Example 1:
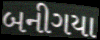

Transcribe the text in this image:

બનીગયા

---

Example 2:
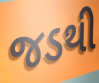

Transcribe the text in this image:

જડથી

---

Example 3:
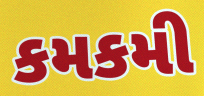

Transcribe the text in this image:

કમકમી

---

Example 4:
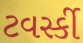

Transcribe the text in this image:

ટવર્સ્કી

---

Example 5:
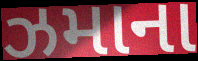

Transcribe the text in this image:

ઝમાના